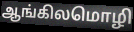
ஆங்கிலமொழி